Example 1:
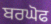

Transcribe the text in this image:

ਬਰਘੋਫ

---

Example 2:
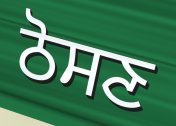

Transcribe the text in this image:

ਠੋਸਣ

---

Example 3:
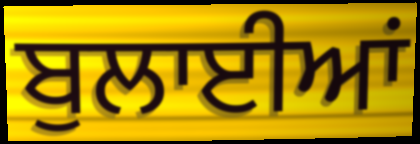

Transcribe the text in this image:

ਬੁਲਾਈਆਂ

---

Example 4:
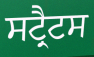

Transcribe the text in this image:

ਸਟ੍ਰੈਟਸ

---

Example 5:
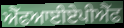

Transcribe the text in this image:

ਐੱਫਆਈਏਪੀਐੱਫ